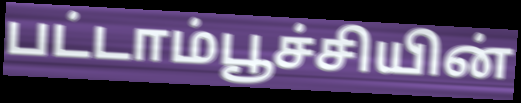
பட்டாம்பூச்சியின்